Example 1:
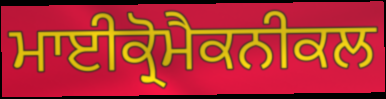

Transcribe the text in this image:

ਮਾਈਕ੍ਰੋਮੈਕਨੀਕਲ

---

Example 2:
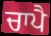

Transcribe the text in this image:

ਚਾਪੈ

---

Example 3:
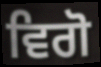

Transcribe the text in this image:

ਵਿਗੋ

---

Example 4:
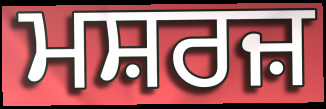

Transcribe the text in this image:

ਮਸ਼ਰਜ਼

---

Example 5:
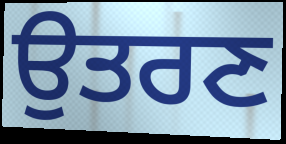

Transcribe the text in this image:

ਉਤਰਣ